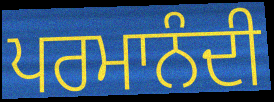
ਪਰਮਾਨੰਦੀ